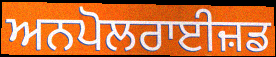
ਅਨਪੋਲਰਾਈਜ਼ਡ